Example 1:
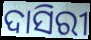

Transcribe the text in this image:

ଦାସିରୀ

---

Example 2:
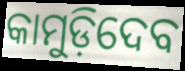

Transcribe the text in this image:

କାମୁଡ଼ିଦେବ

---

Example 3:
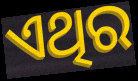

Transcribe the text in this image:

ଏଥିର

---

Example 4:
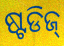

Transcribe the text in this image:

ଷ୍ଟଡିଜ୍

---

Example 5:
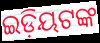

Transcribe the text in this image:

ଇଡ଼ିୟଟଙ୍କ